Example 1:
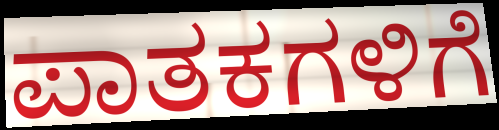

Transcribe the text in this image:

ಪಾತಕಗಳಿಗೆ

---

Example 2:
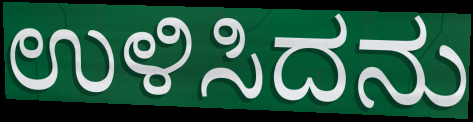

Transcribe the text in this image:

ಉಳಿಸಿದನು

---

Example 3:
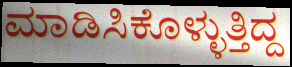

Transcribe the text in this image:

ಮಾಡಿಸಿಕೊಳ್ಳುತ್ತಿದ್ದ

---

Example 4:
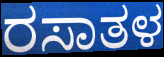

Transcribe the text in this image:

ರಸಾತಳ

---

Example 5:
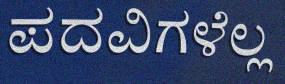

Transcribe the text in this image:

ಪದವಿಗಳೆಲ್ಲ